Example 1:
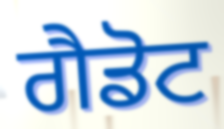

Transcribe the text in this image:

ਗੈਡੋਟ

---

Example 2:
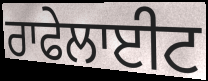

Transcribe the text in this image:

ਰਾਫੇਲਾਈਟ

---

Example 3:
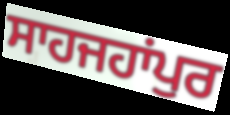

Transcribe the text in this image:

ਸਾਹਜਹਾਂਪੁਰ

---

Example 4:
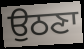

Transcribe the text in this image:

ਉਠਣਾ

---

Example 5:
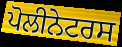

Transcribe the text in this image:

ਪੋਲੀਨੇਟਰਸ